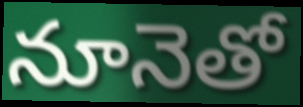
నూనెతో